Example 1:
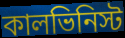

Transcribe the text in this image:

কালভিনিস্ট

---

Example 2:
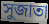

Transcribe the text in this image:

সুজাতা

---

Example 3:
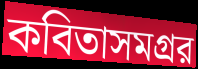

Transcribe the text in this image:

কবিতাসমগ্রর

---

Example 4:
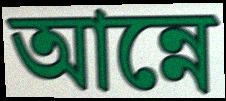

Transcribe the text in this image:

আন্নে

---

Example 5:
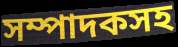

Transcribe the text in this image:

সম্পাদকসহ